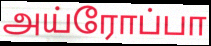
அய்ரோப்பா